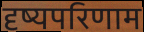
दृष्यपरिणाम